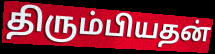
திரும்பியதன்